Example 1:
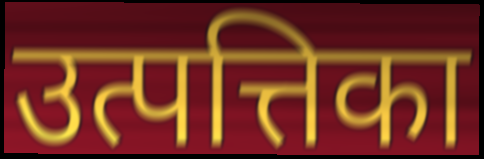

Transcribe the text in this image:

उत्पत्तिका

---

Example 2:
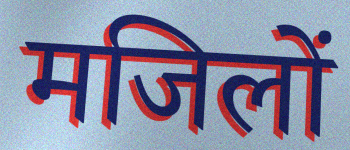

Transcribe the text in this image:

मजिलों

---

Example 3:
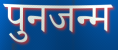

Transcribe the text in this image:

पुनजन्म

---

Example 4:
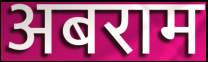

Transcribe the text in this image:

अबराम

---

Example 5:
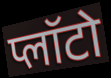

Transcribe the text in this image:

प्लॉटो